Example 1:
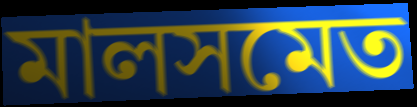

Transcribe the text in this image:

মালসমেত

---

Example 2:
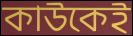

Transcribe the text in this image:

কাউকেই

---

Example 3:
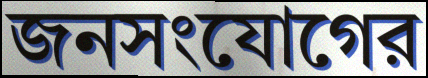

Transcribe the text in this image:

জনসংযোগের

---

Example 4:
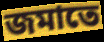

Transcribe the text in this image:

জমাতে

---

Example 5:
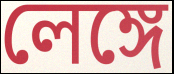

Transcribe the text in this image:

লেঙ্গে